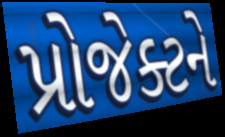
પ્રોજેક્ટને